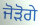
ਜੋੜੋਗੇ